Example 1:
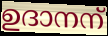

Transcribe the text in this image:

ഉദാനന്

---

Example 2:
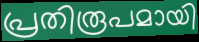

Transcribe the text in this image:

പ്രതിരൂപമായി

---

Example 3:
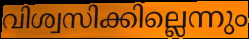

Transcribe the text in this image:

വിശ്വസിക്കില്ലെന്നും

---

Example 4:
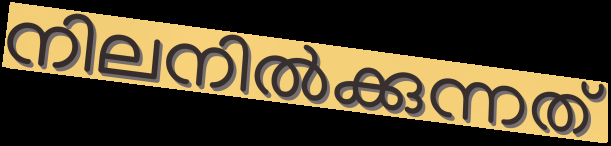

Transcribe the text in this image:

നിലനിൽക്കുന്നത്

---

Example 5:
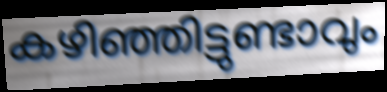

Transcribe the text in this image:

കഴിഞ്ഞിട്ടുണ്ടാവും